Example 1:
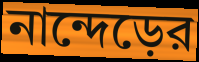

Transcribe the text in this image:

নান্দেড়ের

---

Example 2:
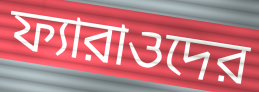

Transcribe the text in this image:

ফ্যারাওদের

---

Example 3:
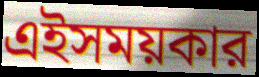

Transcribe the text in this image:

এইসময়কার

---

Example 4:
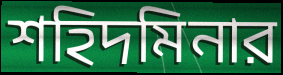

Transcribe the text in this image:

শহিদমিনার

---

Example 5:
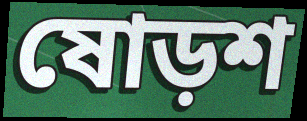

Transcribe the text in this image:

ষোড়শ